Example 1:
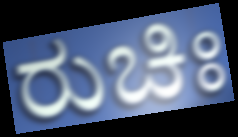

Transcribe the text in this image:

ರುಚಿಃ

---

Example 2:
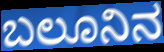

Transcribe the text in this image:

ಬಲೂನಿನ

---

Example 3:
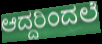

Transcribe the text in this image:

ಆದ್ದರಿಂದಲೆ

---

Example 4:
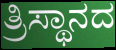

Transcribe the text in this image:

ತ್ರಿಸ್ಥಾನದ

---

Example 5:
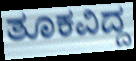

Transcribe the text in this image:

ತೂಕವಿದ್ದ